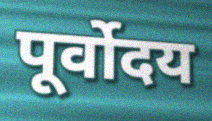
पूर्वोदय